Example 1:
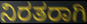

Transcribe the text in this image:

ನಿರತರಾಗಿ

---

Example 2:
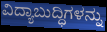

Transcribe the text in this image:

ವಿದ್ಯಾಬುದ್ಧಿಗಳನ್ನು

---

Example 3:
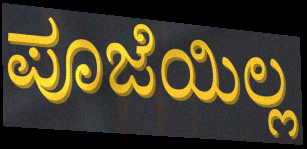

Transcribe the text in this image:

ಪೂಜೆಯಿಲ್ಲ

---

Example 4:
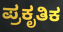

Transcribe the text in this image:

ಪ್ರಕೃತಿಕ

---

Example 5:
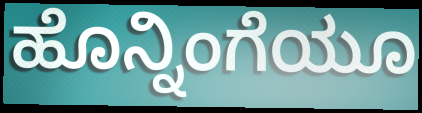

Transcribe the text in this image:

ಹೊನ್ನಿಂಗೆಯೂ